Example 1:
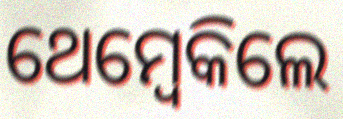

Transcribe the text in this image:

ଥେମ୍ବେକିଲେ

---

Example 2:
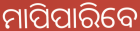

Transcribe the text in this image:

ମାପିପାରିବେ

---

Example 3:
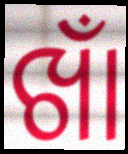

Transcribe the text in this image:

ଖାଁ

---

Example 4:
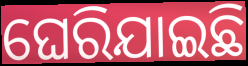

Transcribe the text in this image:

ଘେରିଯାଇଛି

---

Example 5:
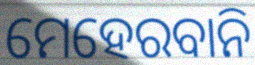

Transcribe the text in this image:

ମେହେରବାନି